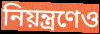
নিয়ন্ত্রণেও